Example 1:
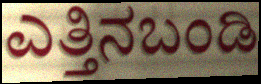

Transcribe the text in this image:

ಎತ್ತಿನಬಂಡಿ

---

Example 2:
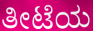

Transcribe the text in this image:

ತೀಟೆಯ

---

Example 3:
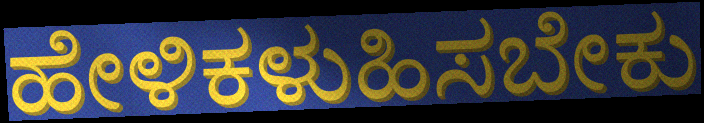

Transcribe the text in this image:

ಹೇಳಿಕಳುಹಿಸಬೇಕು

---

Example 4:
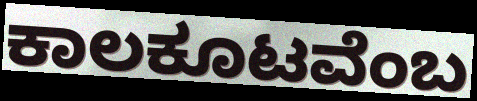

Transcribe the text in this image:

ಕಾಲಕೂಟವೆಂಬ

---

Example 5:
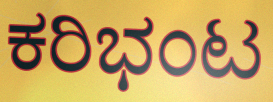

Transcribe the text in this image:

ಕರಿಭಂಟ